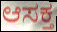
ಆಸಕ್ತ